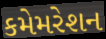
કમેમરેશન